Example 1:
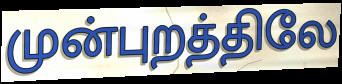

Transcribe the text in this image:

முன்புறத்திலே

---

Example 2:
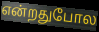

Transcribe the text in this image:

என்றதுபோல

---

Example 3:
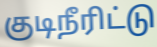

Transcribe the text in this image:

குடிநீரிட்டு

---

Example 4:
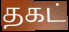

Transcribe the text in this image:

தகட்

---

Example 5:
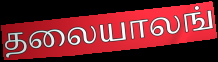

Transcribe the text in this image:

தலையாலங்